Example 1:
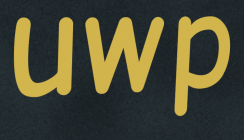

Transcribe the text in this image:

uwp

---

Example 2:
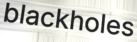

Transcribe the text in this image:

blackholes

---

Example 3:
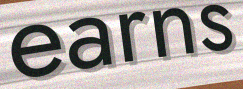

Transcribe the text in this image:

earns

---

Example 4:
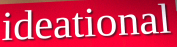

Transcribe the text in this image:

ideational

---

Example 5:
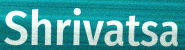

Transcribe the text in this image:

Shrivatsa